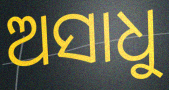
ଅସାଧୁ